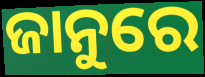
ଜାନୁରେ